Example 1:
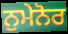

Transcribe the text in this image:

ਨੁਮੇਨੋਰ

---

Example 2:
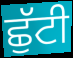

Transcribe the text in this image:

ਛੁੱਟੀ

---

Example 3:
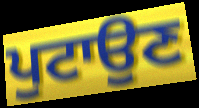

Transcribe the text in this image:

ਪੁਟਾਉਣ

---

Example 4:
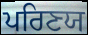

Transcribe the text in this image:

ਪਰਿਣਯ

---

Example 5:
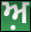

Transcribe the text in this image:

ਅ਼